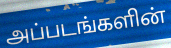
அப்படங்களின்